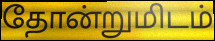
தோன்றுமிடம்